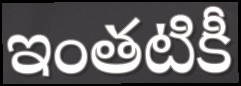
ఇంతటికీ